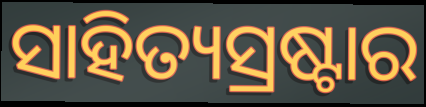
ସାହିତ୍ୟସ୍ରଷ୍ଟାର